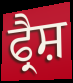
ਫ੍ਰੈਸ਼